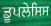
ਡੂਪਲੇਸਿਸ